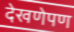
देखणेपण